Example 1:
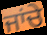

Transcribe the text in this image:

ਜਾਂਚੇ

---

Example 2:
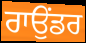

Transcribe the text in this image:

ਰਾਉਂਡਰ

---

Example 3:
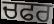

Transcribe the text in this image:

ਚਫਰ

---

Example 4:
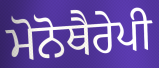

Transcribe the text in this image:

ਮੋਨੋਥੈਰੇਪੀ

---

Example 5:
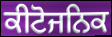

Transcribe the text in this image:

ਕੀਟੋਜਨਿਕ